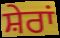
ਸ਼ੇਰਾਂ